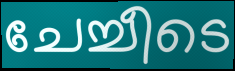
ചേച്ചീടെ